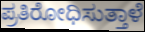
ಪ್ರತಿರೋಧಿಸುತ್ತಾಳೆ